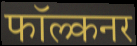
फॉल्कनर